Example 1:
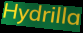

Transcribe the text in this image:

Hydrilla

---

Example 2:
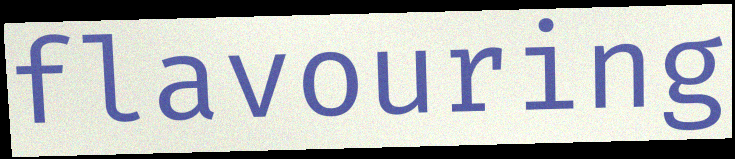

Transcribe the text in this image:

flavouring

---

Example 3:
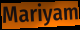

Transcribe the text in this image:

Mariyam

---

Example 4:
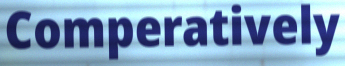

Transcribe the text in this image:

Comperatively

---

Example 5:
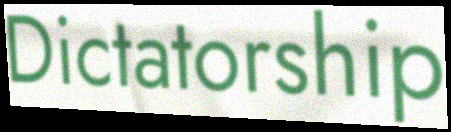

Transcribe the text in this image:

Dictatorship